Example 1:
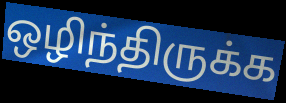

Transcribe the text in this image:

ஒழிந்திருக்க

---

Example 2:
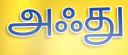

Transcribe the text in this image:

அஃது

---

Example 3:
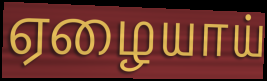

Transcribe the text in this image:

ஏழையாய்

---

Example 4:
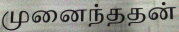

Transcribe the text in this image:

முனைந்ததன்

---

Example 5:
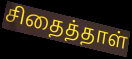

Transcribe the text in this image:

சிதைத்தாள்